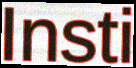
Insti